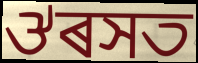
ঔৰসত